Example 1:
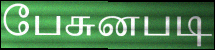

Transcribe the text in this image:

பேசுனபடி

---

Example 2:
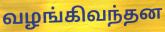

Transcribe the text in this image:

வழங்கிவந்தன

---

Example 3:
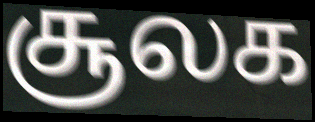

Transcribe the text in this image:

சூலக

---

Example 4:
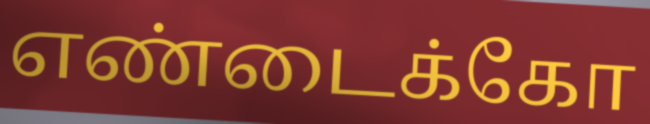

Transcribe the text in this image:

எண்டைக்கோ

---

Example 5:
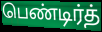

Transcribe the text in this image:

பெண்டிர்த்